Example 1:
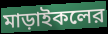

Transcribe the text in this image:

মাড়াইকলের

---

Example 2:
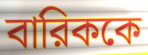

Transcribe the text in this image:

বারিককে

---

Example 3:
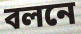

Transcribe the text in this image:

বলনে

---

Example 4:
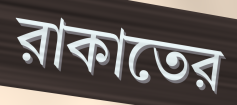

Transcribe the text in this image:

রাকাতের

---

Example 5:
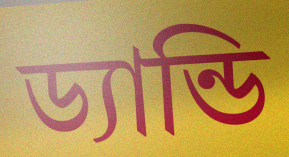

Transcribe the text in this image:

ড্যান্ডি